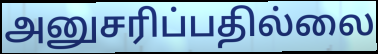
அனுசரிப்பதில்லை